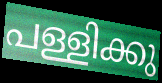
പള്ളിക്കു